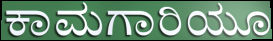
ಕಾಮಗಾರಿಯೂ